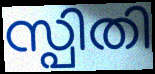
സ്പിതി